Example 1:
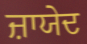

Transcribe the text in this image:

ਜ਼ਾਯੇਦ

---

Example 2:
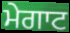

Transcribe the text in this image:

ਮੇਗਾਟ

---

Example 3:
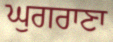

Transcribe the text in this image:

ਘੁਗਰਾਣਾ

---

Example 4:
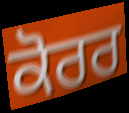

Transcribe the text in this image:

ਕੋਰਰ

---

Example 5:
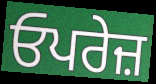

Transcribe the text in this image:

ਓਪਰੇਜ਼